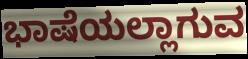
ಭಾಷೆಯಲ್ಲಾಗುವ